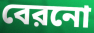
বেরনো